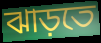
ঝাড়তে